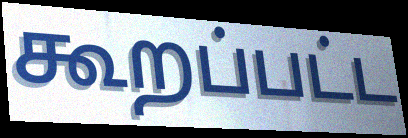
கூறப்பட்ட